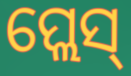
ପ୍ଲେସ୍